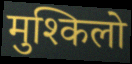
मुश्किलो